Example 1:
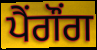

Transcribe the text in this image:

ਪੈਂਗੌਂਗ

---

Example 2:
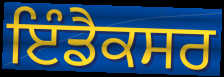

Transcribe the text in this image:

ਇੰਡੈਕਸਰ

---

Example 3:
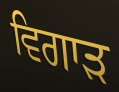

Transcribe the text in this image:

ਵਿਗਾਡ਼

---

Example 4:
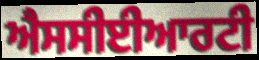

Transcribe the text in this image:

ਐਸਸੀਈਆਰਟੀ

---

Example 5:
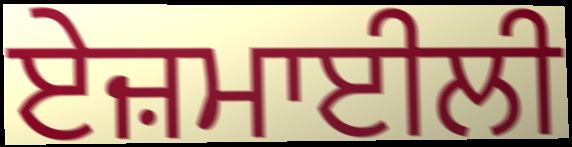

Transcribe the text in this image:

ਏਜ਼ਮਾਈਲੀ